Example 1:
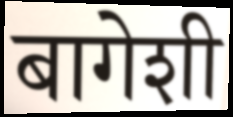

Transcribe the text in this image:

बागेशी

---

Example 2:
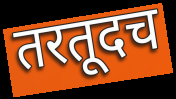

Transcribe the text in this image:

तरतूदच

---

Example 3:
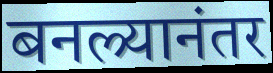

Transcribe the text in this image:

बनल्यानंतर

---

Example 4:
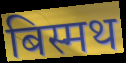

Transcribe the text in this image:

बिस्मथ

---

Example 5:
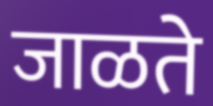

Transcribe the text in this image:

जाळते